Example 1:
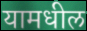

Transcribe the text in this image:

यामधील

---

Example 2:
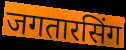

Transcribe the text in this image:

जगतारसिंग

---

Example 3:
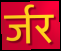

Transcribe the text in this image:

र्जर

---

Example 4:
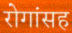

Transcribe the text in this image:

रोगांसह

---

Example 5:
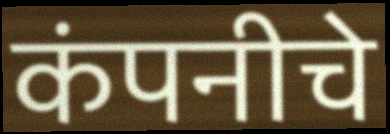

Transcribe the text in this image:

कंपनीचे